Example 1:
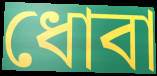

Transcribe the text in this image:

ধোবা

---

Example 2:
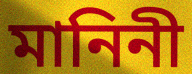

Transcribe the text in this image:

মানিনী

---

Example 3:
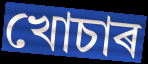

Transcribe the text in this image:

খোচাৰ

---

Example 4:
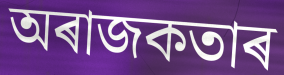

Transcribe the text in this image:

অৰাজকতাৰ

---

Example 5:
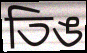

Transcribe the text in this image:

তিঙ